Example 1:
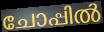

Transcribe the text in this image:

ചോപ്പിൽ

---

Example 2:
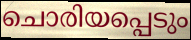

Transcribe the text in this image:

ചൊരിയപ്പെടും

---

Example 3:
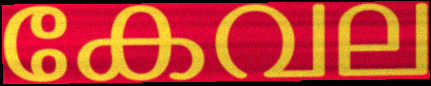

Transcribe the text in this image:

കേവല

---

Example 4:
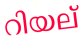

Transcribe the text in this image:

റിയല്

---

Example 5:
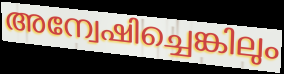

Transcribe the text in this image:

അന്വേഷിച്ചെങ്കിലും